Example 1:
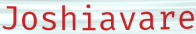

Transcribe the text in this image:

Joshiavare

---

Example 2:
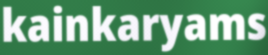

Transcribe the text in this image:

kainkaryams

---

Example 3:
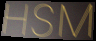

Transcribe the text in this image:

HSM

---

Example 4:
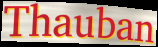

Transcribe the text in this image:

Thauban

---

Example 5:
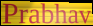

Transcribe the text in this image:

Prabhav